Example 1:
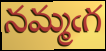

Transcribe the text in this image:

నమ్మఁగ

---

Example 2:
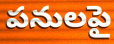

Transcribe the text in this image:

పనులపై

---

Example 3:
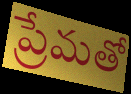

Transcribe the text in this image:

ప్రేమతో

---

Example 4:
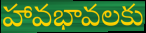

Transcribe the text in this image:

హావభావలకు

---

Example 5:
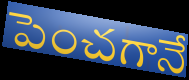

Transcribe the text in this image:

పెంచగానే